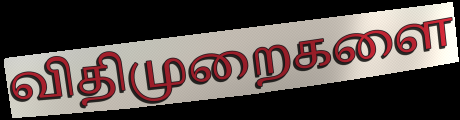
விதிமுறைகளை